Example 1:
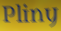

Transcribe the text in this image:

Pliny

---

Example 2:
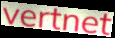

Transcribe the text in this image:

vertnet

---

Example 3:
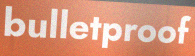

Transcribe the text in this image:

bulletproof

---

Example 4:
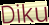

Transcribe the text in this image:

Diku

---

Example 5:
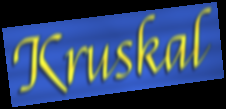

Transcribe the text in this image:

Kruskal